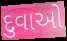
દુવાઓ